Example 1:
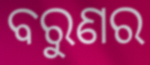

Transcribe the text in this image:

ବରୁଣର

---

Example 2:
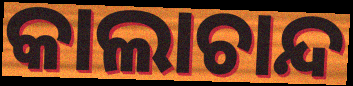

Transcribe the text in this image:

କାଲାଚାନ୍ଦ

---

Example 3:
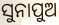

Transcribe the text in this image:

ସୁନାପୁଅ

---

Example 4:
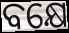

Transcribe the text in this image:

ବକ୍ଷେ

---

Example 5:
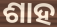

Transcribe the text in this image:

ଶାହ